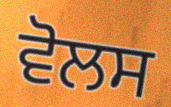
ਵੋਲਸ